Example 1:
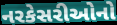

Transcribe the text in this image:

નરકેસરીઓનો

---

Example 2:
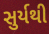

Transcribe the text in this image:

સુર્યથી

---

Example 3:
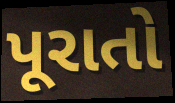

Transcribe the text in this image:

પૂરાતો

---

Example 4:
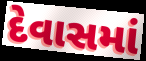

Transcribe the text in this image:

દેવાસમાં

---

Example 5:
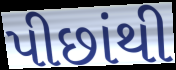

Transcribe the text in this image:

પીછાંથી